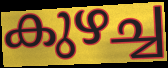
കുഴച്ച